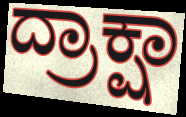
ದ್ರಾಕ್ಷಾ